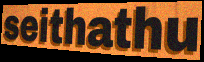
seithathu